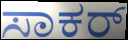
ಸಾಕರ್